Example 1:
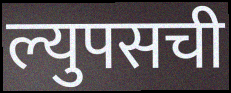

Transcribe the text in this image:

ल्युपसची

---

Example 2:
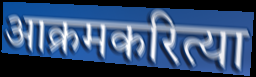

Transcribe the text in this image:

आक्रमकरित्या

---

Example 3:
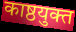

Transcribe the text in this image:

काष्ठयुक्त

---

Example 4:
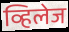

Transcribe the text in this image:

व्हिलेज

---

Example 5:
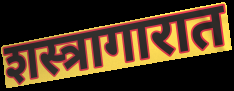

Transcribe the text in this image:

शस्त्रागारात